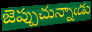
జెప్పుచున్నాఁడు